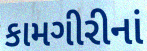
કામગીરીનાં